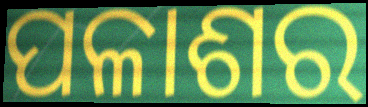
ପଳାଶର